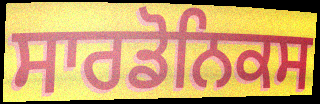
ਸਾਰਡੋਨਿਕਸ